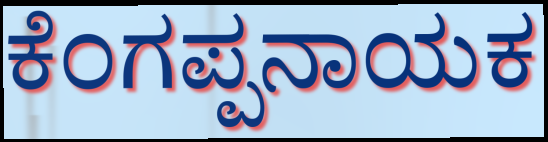
ಕೆಂಗಪ್ಪನಾಯಕ